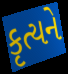
કૃત્યને